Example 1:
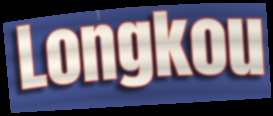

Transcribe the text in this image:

Longkou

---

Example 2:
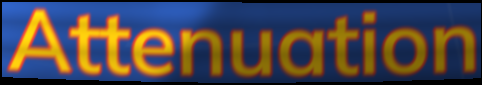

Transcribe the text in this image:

Attenuation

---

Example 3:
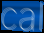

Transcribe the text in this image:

cal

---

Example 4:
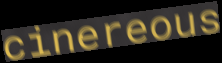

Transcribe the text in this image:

cinereous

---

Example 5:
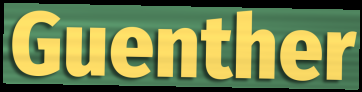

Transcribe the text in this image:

Guenther